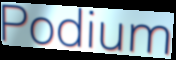
Podium